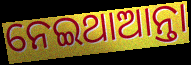
ନେଇଥାଆନ୍ତା